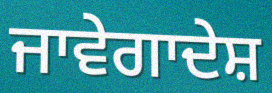
ਜਾਵੇਗਾਦੇਸ਼